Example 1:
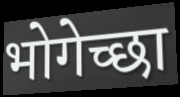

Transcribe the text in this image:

भोगेच्छा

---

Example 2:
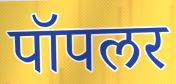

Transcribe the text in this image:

पॉपलर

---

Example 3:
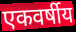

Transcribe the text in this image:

एकवर्षीय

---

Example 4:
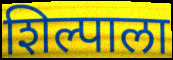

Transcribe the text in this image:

शिल्पाला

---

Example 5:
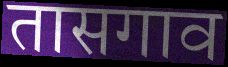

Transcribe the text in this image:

तासगाव